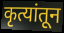
कृत्यांतून